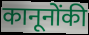
कानूनोंकी